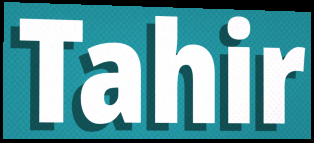
Tahir